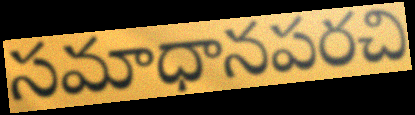
సమాధానపరచి